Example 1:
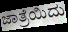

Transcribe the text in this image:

ಜಾತ್ರೆಯಿದು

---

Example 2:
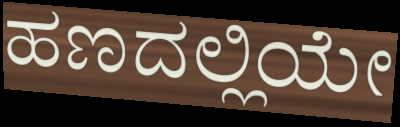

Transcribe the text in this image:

ಹಣದಲ್ಲಿಯೇ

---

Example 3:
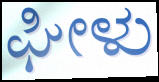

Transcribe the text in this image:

ಘೀಳು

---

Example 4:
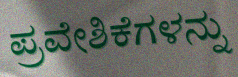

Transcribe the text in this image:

ಪ್ರವೇಶಿಕೆಗಳನ್ನು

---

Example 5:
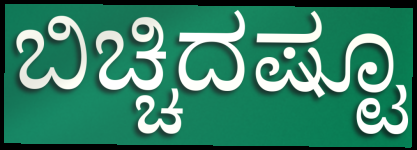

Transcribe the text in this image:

ಬಿಚ್ಚಿದಷ್ಟೂ